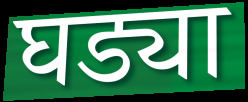
घड्या